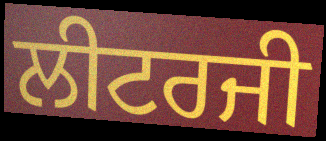
ਲੀਟਰਜੀ